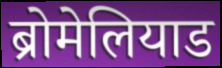
ब्रोमेलियाड